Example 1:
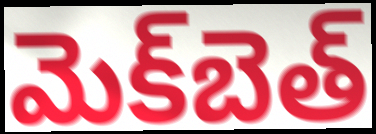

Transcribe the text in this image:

మెక్‌బెత్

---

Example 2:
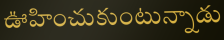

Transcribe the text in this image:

ఊహించుకుంటున్నాడు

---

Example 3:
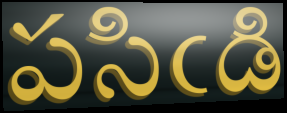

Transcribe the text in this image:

పసిఁడి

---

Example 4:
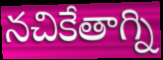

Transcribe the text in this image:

నచికేతాగ్ని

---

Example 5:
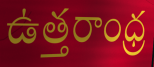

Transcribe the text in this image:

ఉత్తరాంధ్ర